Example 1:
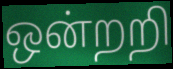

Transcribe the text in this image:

ஒன்றறி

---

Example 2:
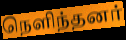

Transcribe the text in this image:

நெளிந்தனர்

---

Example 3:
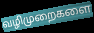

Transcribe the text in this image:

வழிமுறைகளை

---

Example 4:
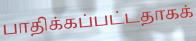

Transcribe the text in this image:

பாதிக்கப்பட்டதாகக்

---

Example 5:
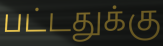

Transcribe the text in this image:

பட்டதுக்கு